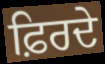
ਫ਼ਿਰਦੇ